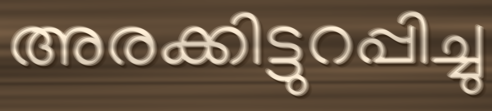
അരക്കിട്ടുറപ്പിച്ചു